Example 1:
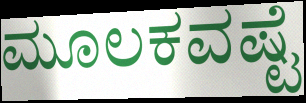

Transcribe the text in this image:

ಮೂಲಕವಷ್ಟೆ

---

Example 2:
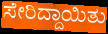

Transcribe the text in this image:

ಸೇರಿದ್ದಾಯಿತು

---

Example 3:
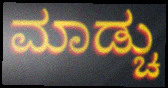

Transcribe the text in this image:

ಮಾಡ್ಚು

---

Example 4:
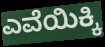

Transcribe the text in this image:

ಎವೆಯಿಕ್ಕಿ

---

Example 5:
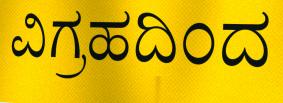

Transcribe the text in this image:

ವಿಗ್ರಹದಿಂದ